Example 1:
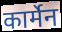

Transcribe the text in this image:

कार्मेन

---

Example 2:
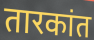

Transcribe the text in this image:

तारकांत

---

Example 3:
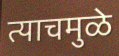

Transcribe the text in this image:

त्याचमुळे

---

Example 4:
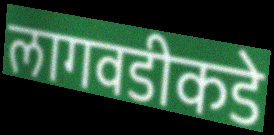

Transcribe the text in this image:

लागवडीकडे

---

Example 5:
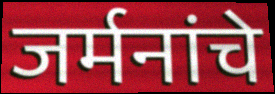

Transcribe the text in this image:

जर्मनांचे